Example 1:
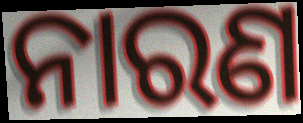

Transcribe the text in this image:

ନାରଣ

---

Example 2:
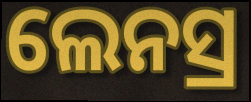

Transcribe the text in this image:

ଲେନସ୍ର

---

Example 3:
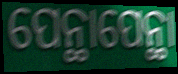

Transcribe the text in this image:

ପେନ୍ଥାପେନ୍ଥା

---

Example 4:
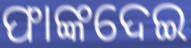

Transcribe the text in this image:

ଫାଙ୍କଦେଇ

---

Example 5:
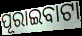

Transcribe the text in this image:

ପୂରାଇବାଟା